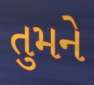
તુમને